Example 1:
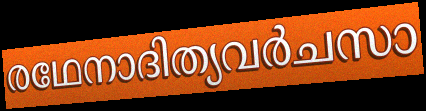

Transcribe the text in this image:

രഥേനാദിത്യവർചസാ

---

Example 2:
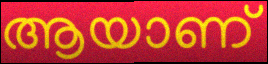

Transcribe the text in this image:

ആയാണ്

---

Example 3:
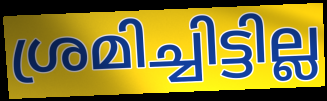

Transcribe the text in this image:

ശ്രമിച്ചിട്ടില്ല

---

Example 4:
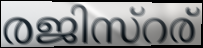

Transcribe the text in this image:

രജിസ്റര്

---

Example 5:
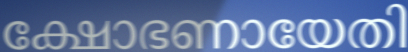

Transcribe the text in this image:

ക്ഷോഭണായേതി